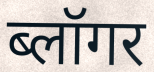
ब्लॉगर